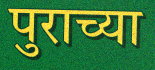
पुराच्या